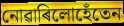
নোৱাৰিলোহেঁতেন